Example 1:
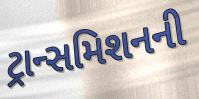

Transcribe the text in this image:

ટ્રાન્સમિશનની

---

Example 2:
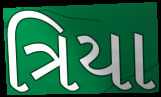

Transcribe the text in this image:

ત્રિયા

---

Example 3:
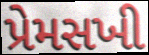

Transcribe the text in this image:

પ્રેમસખી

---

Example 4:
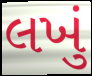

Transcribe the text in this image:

લખું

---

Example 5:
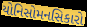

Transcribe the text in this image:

યોનિસોમનસિકારો